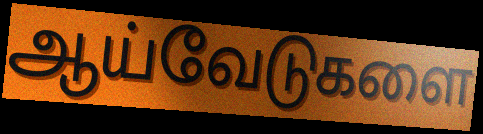
ஆய்வேடுகளை